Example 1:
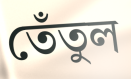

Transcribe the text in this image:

তেঁতুল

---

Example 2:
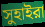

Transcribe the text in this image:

সুহাইরা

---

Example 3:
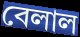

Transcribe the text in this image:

বেলাল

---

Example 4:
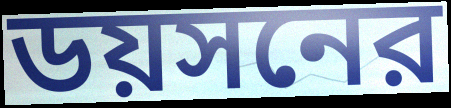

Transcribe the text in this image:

ডয়সনের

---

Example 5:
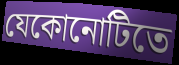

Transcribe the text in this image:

যেকোনোটিতে